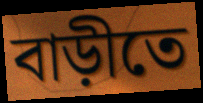
বাড়ীতে